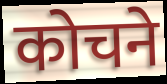
कोचने